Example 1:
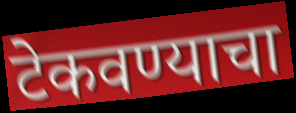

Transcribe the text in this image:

टेकवण्याचा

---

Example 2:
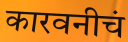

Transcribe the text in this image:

कारवनीचं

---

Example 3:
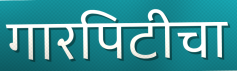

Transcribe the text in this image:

गारपिटीचा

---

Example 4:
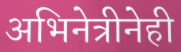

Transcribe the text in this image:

अभिनेत्रीनेही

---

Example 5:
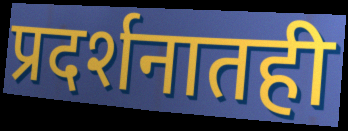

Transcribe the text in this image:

प्रदर्शनातही